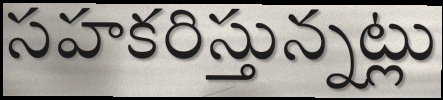
సహకరిస్తున్నట్లు